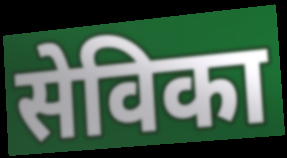
सेविका